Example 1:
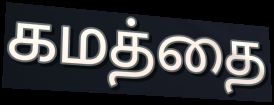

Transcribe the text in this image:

கமத்தை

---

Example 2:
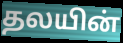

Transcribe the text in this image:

தலயின்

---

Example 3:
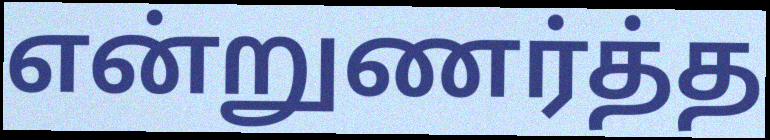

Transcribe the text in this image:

என்றுணர்த்த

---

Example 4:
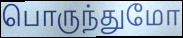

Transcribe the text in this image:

பொருந்துமோ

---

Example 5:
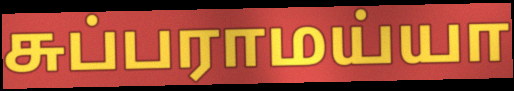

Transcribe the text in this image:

சுப்பராமய்யா